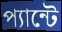
প্যান্টে